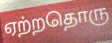
ஏற்றதொரு